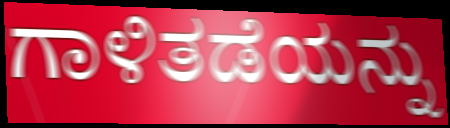
ಗಾಳಿತಡೆಯನ್ನು